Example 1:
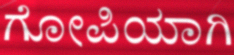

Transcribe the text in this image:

ಗೋಪಿಯಾಗಿ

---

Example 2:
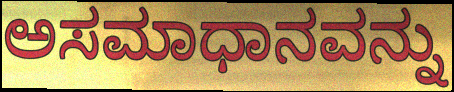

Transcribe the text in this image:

ಅಸಮಾಧಾನವನ್ನು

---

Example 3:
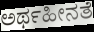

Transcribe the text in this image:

ಅರ್ಥಹೀನತೆ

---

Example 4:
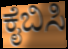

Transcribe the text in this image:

ಕೈಬಿಸಿ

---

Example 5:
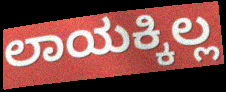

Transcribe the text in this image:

ಲಾಯಕ್ಕಿಲ್ಲ